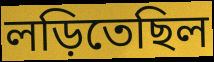
লড়িতেছিল